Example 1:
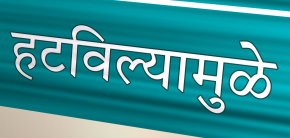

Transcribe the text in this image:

हटविल्यामुळे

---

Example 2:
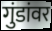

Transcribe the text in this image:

गुंडांवर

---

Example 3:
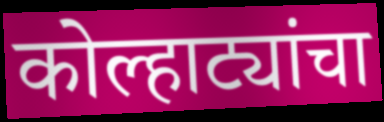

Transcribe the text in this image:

कोल्हाट्यांचा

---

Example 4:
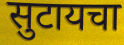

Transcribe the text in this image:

सुटायचा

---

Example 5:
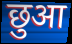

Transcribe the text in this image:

छुआ